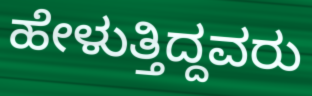
ಹೇಳುತ್ತಿದ್ದವರು